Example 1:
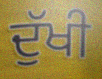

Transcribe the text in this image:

ਦੁੱਖੀ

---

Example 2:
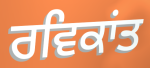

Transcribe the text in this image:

ਰਵਿਕਾਂਤ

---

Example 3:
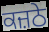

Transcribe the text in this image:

ਕਜ਼ਠੇ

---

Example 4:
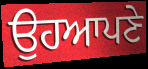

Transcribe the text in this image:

ਉਹਆਪਣੇ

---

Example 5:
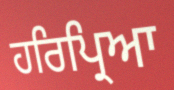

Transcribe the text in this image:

ਹਰਿਪ੍ਰਿਆ